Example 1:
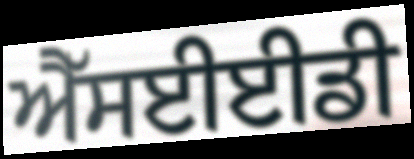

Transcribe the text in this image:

ਐੱਸਈਈਡੀ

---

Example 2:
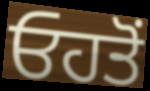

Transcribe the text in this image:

ਓਹਤੋਂ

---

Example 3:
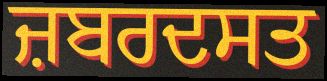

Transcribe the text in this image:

ਜ਼ਬਰਦਸਤ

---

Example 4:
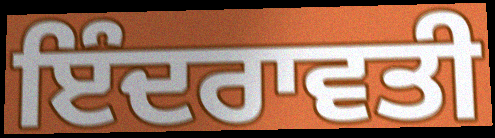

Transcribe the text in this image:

ਇੰਦਰਾਵਤੀ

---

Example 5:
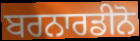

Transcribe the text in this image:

ਬਰਨਾਰਡੀਨੋ